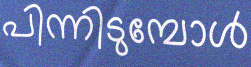
പിന്നിടുമ്പോൾ